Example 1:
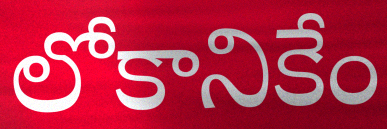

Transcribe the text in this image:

లోకానికేం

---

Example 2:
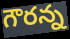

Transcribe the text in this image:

గౌరన్న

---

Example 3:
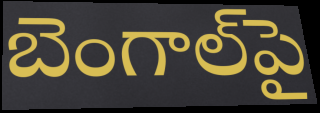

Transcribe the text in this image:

బెంగాల్‌పై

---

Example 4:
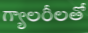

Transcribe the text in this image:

గ్యాలరీలతో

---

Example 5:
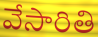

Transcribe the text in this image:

వేసారితి